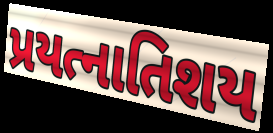
પ્રયત્નાતિશય